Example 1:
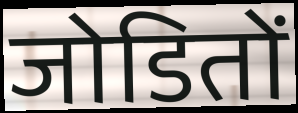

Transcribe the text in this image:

जोडितों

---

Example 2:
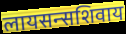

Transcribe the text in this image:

लायसन्सशिवाय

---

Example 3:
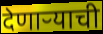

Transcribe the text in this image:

देणाऱ्याची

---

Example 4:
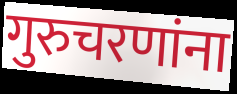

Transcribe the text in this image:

गुरुचरणांना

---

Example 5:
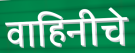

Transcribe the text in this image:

वाहिनीचे